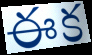
ఈక